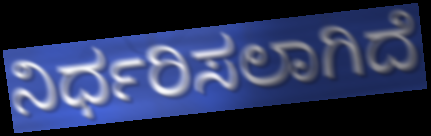
ನಿರ್ಧರಿಸಲಾಗಿದೆ